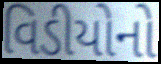
વિડીયોનો